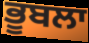
ਭੂਬਲਾ